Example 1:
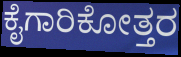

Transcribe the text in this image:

ಕೈಗಾರಿಕೋತ್ತರ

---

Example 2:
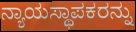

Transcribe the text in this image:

ನ್ಯಾಯಸ್ಥಾಪಕರನ್ನು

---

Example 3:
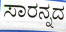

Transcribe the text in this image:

ಸಾರನ್ನದ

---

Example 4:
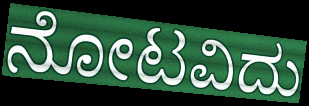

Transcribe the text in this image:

ನೋಟವಿದು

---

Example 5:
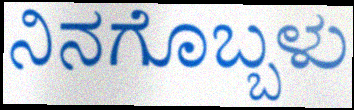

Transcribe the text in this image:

ನಿನಗೊಬ್ಬಳು